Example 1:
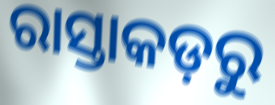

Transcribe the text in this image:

ରାସ୍ତାକଡ଼ରୁ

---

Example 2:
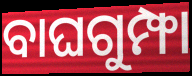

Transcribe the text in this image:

ବାଘଗୁମ୍ଫା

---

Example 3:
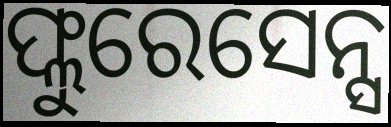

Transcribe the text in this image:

ଫ୍ଲୁରେସେନ୍ସ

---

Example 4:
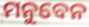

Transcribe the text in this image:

ମନୁବେନ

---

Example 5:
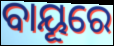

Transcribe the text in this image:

ବାୟୂରେ